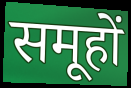
समूहों